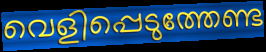
വെളിപ്പെടുത്തേണ്ട